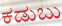
ಕಡುಬು